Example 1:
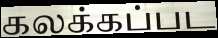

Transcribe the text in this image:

கலக்கப்பட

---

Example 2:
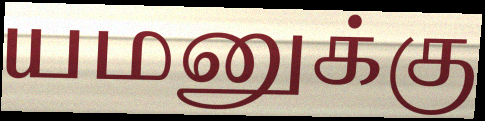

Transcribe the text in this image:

யமனுக்கு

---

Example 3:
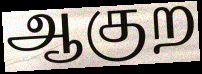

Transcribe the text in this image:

ஆகுற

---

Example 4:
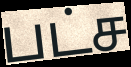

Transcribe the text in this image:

பட்ச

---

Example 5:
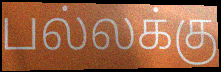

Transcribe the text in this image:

பல்லக்கு